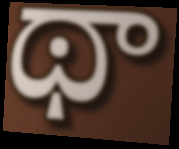
థా